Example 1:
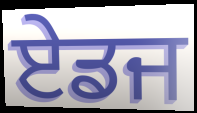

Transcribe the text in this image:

ਏਡਜ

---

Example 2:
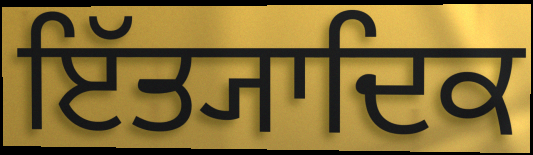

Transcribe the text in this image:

ਇੱਤ੍ਯਾਦਿਕ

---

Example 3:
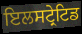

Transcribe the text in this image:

ਇਲਸਟ੍ਰੇਟਿਡ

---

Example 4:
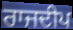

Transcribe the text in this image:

ਰਾਜਦੀਪ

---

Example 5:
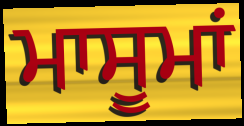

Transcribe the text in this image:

ਮਾਸੂਮਾਂ